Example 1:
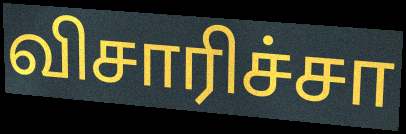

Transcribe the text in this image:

விசாரிச்சா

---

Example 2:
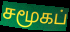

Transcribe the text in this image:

சமூகப்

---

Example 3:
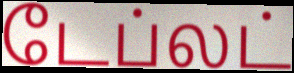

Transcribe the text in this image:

டேப்லட்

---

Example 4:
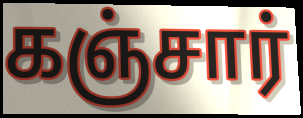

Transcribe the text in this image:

கஞ்சார்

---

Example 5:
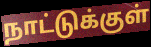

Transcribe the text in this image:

நாட்டுக்குள்